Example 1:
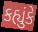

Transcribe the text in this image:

કહ્યુંકે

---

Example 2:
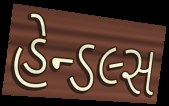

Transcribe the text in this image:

હેન્ડલ્સ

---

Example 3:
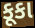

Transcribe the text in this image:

કૂકા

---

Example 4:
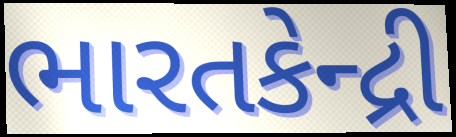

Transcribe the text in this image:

ભારતકેન્દ્રી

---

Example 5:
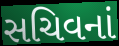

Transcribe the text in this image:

સચિવનાં